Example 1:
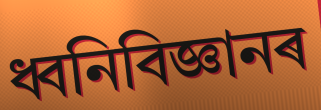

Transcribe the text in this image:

ধ্বনিবিজ্ঞানৰ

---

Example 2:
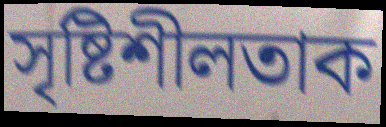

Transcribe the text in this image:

সৃষ্টিশীলতাক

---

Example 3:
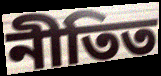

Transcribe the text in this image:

নীতিত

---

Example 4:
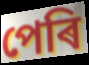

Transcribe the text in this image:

পেৰি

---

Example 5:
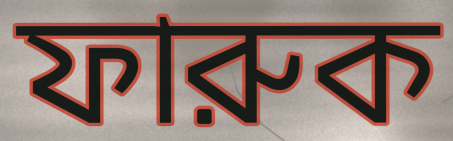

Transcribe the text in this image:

ফাৰুক